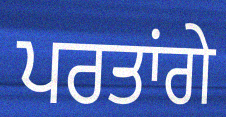
ਪਰਤਾਂਗੇ